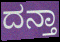
ದನ್ತಾ